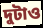
দুটাও